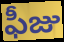
ఫీజు